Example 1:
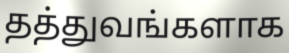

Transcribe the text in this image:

தத்துவங்களாக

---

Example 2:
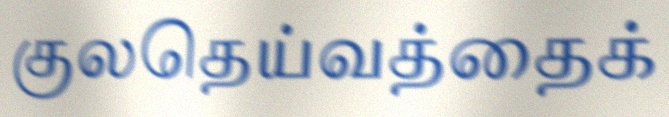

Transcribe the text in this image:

குலதெய்வத்தைக்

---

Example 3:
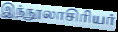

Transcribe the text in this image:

இந்நூலாசிரியர்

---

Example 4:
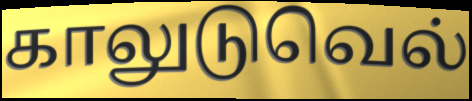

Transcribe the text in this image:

காலுடுவெல்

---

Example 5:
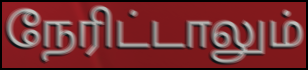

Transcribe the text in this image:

நேரிட்டாலும்